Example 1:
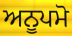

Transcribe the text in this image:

ਅਨੂਪਮੋ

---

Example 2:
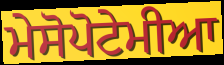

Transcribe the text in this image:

ਮੇਸੋਪੋਟੇਮੀਆ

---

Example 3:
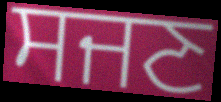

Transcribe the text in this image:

ਸਜਣ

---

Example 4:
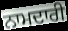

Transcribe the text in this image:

ਨਾਮਦਾਰੀ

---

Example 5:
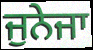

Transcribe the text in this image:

ਜੁਨੇਜਾ